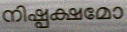
നിഷ്പക്ഷമോ